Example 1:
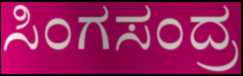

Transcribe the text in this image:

ಸಿಂಗಸಂದ್ರ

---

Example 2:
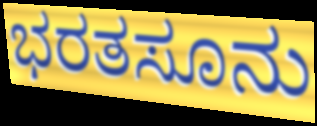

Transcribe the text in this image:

ಭರತಸೂನು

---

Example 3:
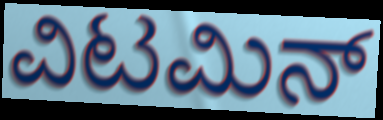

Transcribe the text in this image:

ವಿಟಮಿನ್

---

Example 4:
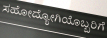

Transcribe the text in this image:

ಸಹೋದ್ಯೋಗಿಯೊಬ್ಬರಿಗೆ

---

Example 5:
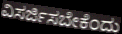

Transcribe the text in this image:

ವಿಸರ್ಜಿಸಬೇಕೆಂದು